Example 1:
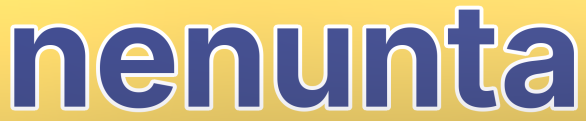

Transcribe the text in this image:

nenunta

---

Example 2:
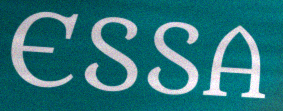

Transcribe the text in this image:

ESSA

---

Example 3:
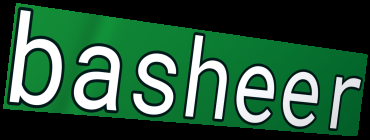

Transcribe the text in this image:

basheer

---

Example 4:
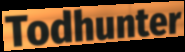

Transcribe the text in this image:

Todhunter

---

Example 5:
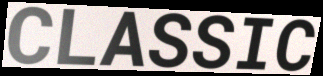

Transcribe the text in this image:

CLASSIC